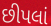
છીપલાં